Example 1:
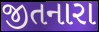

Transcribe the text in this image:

જીતનારા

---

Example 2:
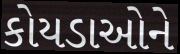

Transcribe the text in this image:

કોયડાઓને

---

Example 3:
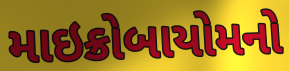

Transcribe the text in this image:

માઇક્રોબાયોમનો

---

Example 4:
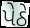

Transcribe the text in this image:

પેઠે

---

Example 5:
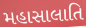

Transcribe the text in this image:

મહાસાલાતિ